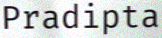
Pradipta